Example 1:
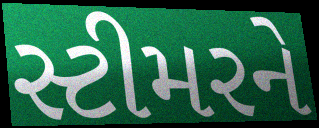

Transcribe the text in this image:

સ્ટીમરને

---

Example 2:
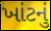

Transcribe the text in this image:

ખાંટનું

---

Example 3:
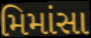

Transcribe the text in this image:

મિમાંસા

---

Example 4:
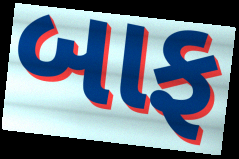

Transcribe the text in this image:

બાફ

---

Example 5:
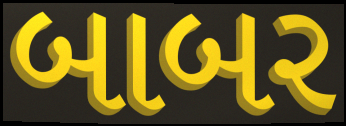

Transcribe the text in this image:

બાબર